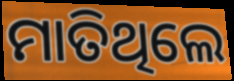
ମାତିଥିଲେ